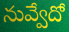
నువ్వేదో